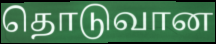
தொடுவான